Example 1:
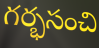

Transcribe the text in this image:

గర్భసంచి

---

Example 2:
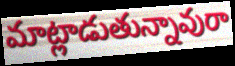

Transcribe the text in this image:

మాట్లాడుతున్నావురా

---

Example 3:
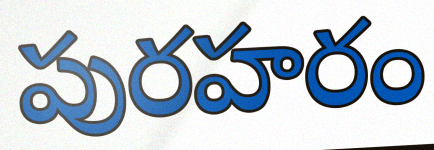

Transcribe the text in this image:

పురహరం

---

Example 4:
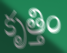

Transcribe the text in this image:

కృత్తిం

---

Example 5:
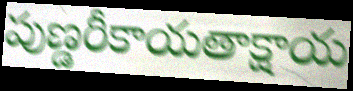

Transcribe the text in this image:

పుణ్డరీకాయతాక్షాయ